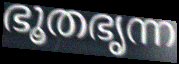
ഭൂതഭൃന്ന